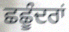
ਛਛੂੰਦਰਾਂ